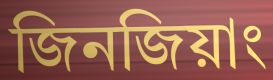
জিনজিয়াং